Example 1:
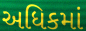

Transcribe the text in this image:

અધિકમાં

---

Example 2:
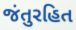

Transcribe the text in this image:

જંતુરહિત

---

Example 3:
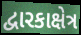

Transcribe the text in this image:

દ્વારકાક્ષેત્ર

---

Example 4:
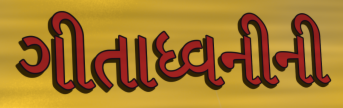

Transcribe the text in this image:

ગીતાધ્વનીની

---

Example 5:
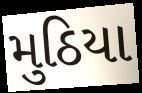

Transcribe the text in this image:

મુઠિયા